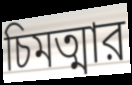
চিমত্মার